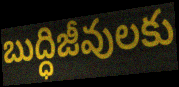
బుద్ధిజీవులకు